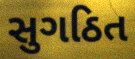
સુગઠિત